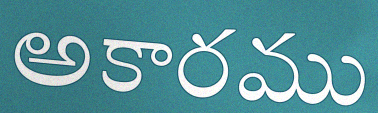
అకారము